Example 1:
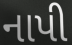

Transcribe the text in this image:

નાપી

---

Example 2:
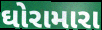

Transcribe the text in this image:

ઘોરામારા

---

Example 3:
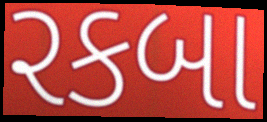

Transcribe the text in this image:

રકબા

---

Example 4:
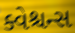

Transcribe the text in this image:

ક્વેશ્ચન્સ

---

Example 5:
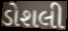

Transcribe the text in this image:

ડોશલી